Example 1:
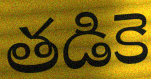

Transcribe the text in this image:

తడికె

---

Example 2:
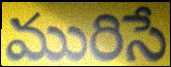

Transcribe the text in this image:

మురిసే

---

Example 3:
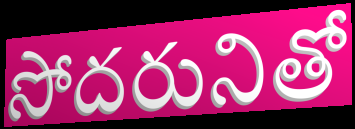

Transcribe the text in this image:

సోదరునితో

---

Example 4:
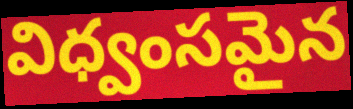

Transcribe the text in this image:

విధ్వంసమైన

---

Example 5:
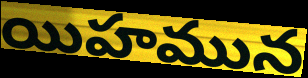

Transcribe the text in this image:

యిహమున